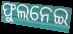
ଫୁଲନେଇ